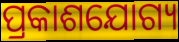
ପ୍ରକାଶଯୋଗ୍ୟ